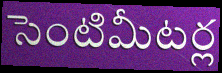
సెంటిమీటర్ల